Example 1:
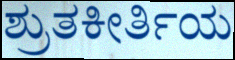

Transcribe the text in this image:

ಶ್ರುತಕೀರ್ತಿಯ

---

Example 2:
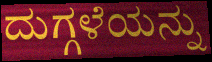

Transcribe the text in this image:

ದುಗ್ಗಳೆಯನ್ನು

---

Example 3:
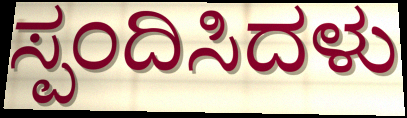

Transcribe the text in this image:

ಸ್ಪಂದಿಸಿದಳು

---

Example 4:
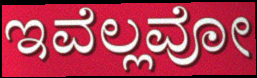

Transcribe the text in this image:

ಇವೆಲ್ಲವೋ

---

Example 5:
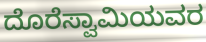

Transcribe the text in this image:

ದೊರೆಸ್ವಾಮಿಯವರ